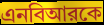
এনবিআরকে